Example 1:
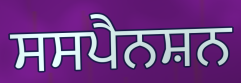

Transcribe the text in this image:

ਸਸਪੈਨਸ਼ਨ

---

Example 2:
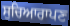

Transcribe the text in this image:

ਸੁਚਿਆਰਾਪਣ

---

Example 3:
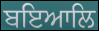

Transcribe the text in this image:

ਬਇਆਲਿ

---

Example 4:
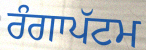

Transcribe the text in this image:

ਰੰਗਾਪੱਟਮ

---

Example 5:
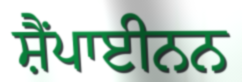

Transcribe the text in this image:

ਸ਼ੈਂਪਾਈਨਨ